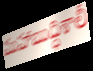
మహాబుద్ధిశాలీ